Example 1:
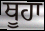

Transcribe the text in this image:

ਥੂਹਾ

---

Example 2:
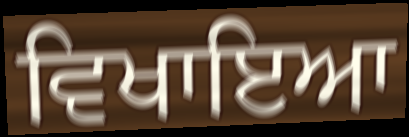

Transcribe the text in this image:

ਵਿਖਾਇਆ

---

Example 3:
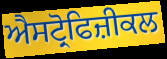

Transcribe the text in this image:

ਐਸਟ੍ਰੋਫਿਜ਼ੀਕਲ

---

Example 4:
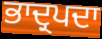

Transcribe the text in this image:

ਭਾਦ੍ਰਪਦਾ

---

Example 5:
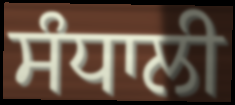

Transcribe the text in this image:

ਸੰਧਾਲੀ